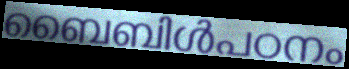
ബൈബിൾപഠനം